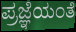
ಪ್ರಜ್ಞೆಯಂತೆ